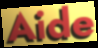
Aide